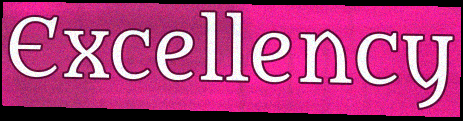
Excellency